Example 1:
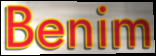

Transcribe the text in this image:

Benim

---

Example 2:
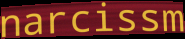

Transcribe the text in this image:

narcissm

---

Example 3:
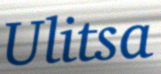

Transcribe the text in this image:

Ulitsa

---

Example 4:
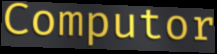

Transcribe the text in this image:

Computor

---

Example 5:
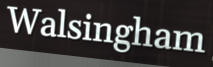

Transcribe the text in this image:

Walsingham